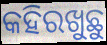
କହିରଖୁଛୁ